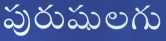
పురుషులగు